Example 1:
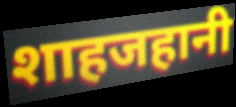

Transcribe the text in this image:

शाहजहानी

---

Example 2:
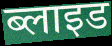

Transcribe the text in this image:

ब्लाइड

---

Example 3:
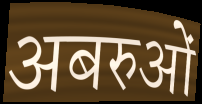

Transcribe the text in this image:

अबरुओं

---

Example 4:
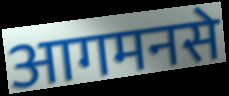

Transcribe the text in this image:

आगमनसे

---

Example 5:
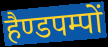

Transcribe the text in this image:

हैण्डपम्पों